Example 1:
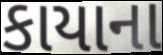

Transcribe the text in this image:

કાયાના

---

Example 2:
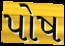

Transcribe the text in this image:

પોષ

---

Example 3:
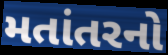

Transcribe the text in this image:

મતાંતરનો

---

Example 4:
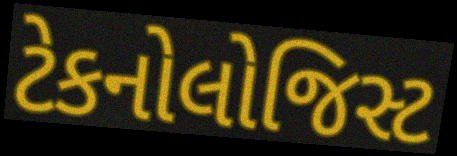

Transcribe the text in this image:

ટેકનોલોજિસ્ટ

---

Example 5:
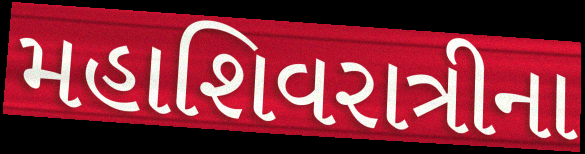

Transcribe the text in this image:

મહાશિવરાત્રીના